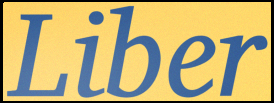
Liber